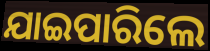
ଯାଇପାରିଲେ